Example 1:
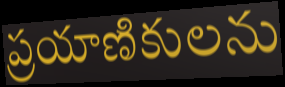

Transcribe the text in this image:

ప్రయాణికులను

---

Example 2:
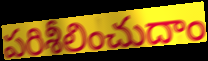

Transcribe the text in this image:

పరిశీలించుదాం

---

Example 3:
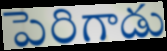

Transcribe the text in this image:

పెరిగాడు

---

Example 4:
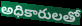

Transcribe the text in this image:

అధికారులతో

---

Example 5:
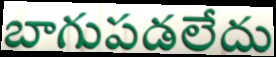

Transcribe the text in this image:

బాగుపడలేదు